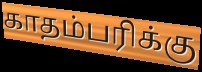
காதம்பரிக்கு